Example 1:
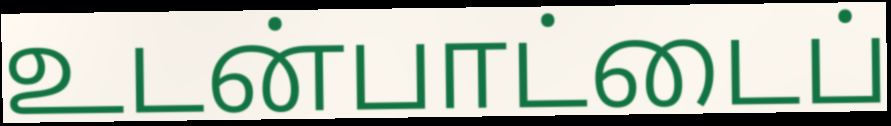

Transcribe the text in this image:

உடன்பாட்டைப்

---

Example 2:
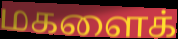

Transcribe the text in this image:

மகளைக்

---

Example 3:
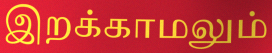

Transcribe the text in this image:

இறக்காமலும்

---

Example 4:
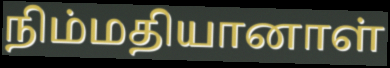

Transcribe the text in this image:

நிம்மதியானாள்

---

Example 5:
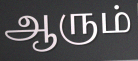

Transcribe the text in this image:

ஆரும்